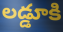
లడ్డూకి